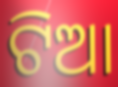
ଟିଆ